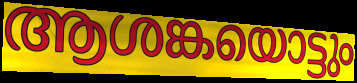
ആശങ്കയൊട്ടും